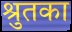
श्रुतका